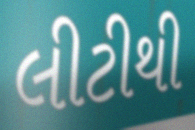
લીટીથી